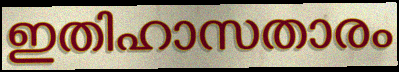
ഇതിഹാസതാരം